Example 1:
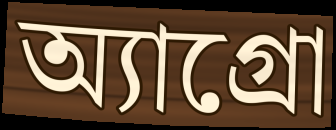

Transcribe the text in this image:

অ্যাগ্রো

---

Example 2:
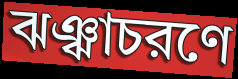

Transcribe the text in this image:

ঝঞ্ঝাচরণে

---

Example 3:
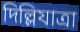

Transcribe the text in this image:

দিল্লিযাত্রা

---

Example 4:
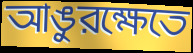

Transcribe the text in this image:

আঙুরক্ষেতে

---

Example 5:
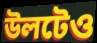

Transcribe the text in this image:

উলটেও